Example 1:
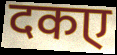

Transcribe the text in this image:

दकए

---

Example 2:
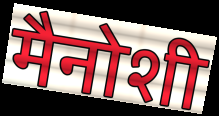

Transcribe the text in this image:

मैनोशी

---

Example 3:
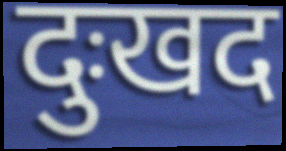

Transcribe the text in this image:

दुःखद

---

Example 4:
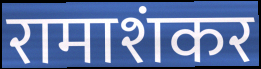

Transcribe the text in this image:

रामाशंकर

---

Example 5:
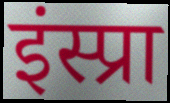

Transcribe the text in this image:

इंस्प्रा